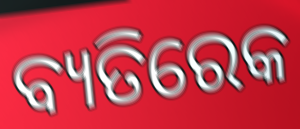
ବ୍ୟତିରେକ